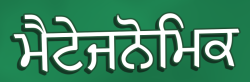
ਮੈਟੇਜਨੋਮਿਕ